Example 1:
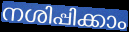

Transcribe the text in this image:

നശിപ്പിക്കാം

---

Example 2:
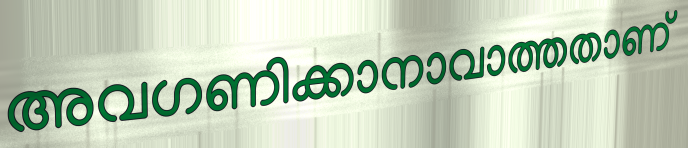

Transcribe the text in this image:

അവഗണിക്കാനാവാത്തതാണ്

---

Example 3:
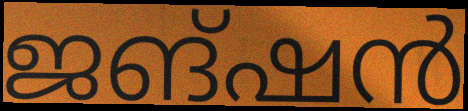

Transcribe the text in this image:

ജങ്ഷൻ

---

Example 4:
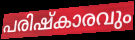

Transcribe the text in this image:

പരിഷ്കാരവും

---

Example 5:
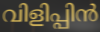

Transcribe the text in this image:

വിളിപ്പിൻ